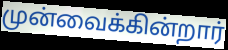
முன்வைக்கின்றார்